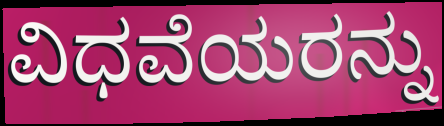
ವಿಧವೆಯರನ್ನು